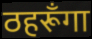
ठहरूँगा